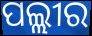
ପଲ୍ଲୀର